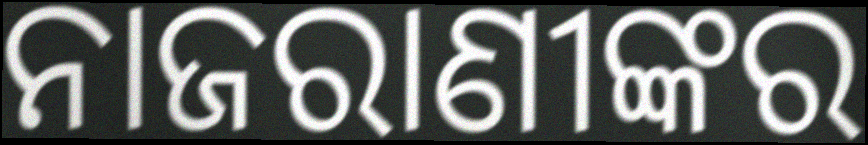
ନାଜରାଣୀଙ୍କର